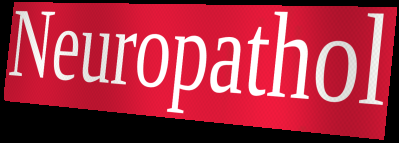
Neuropathol